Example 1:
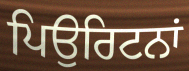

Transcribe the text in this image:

ਪਿਉਰਿਟਨਾਂ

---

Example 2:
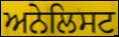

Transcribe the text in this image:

ਅਨੇਲਿਸਟ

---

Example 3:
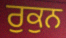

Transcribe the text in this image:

ਰੁਕੁਨ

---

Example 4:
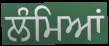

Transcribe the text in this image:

ਲੰਮਿਆਂ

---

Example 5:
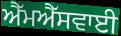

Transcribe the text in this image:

ਐੱਮਐੱਸਵਾਈ